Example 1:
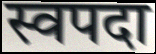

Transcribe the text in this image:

स्वपदा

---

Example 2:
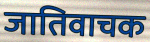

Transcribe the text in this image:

जातिवाचक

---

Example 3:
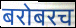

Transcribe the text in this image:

बरोबरच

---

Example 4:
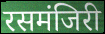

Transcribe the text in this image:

रसमंजिरी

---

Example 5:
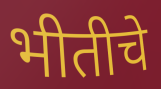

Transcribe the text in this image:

भीतीचे